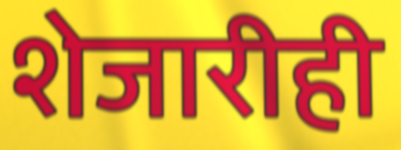
शेजारीही